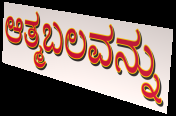
ಆತ್ಮಬಲವನ್ನು